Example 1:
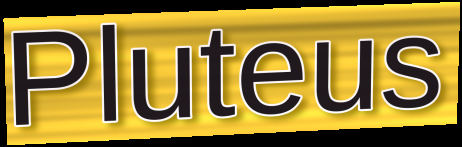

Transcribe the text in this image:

Pluteus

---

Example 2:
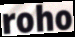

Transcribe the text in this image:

roho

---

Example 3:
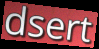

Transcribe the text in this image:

dsert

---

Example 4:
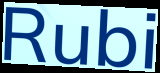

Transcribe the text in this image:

Rubi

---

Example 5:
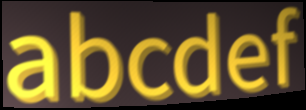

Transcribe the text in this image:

abcdef